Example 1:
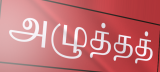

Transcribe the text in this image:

அழுத்தத்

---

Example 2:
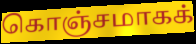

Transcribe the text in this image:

கொஞ்சமாகக்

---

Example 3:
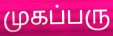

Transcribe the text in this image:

முகப்பரு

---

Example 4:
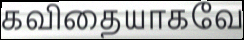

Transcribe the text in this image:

கவிதையாகவே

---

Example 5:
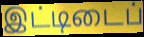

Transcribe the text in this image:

இட்டிடைப்